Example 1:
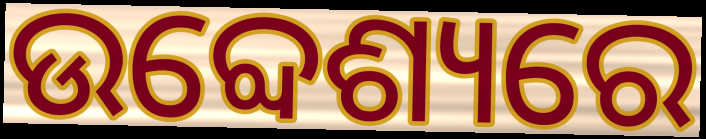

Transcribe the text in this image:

ଉବ୍ଦେଶ୍ୟରେ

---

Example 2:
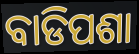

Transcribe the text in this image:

ବାଡିପଶା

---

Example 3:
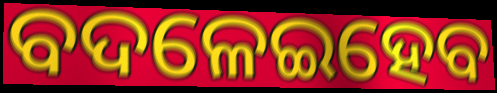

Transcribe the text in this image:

ବଦଳେଇହେବ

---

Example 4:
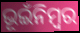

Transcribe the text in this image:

ଭୂଇଁନିମ୍ବର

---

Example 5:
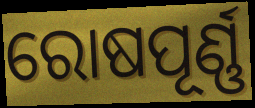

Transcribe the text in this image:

ରୋଷପୂର୍ଣ୍ଣ